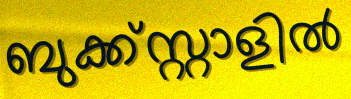
ബുക്ക്സ്റ്റാളിൽ